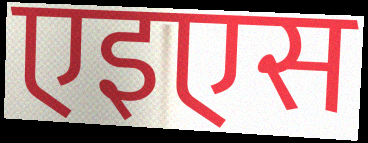
एइएस